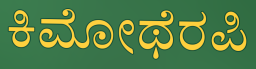
ಕಿಮೋಥೆರಪಿ